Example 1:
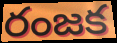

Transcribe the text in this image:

రంజక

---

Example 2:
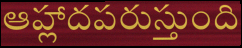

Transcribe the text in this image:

ఆహ్లాదపరుస్తుంది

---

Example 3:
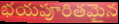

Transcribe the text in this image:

భయపూరితమైన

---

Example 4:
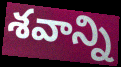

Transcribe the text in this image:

శవాన్ని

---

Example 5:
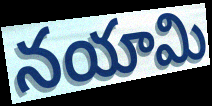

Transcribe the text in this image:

నయామి